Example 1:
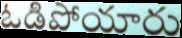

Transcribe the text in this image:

ఓడిపోయారు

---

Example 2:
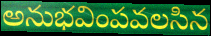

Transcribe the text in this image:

అనుభవింపవలసిన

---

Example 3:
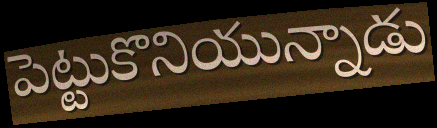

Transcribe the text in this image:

పెట్టుకొనియున్నాడు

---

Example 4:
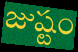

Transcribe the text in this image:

జుష్టం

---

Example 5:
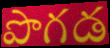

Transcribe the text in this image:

పొగడ